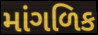
માંગળિક